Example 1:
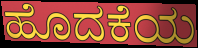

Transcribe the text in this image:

ಹೊದಕೆಯ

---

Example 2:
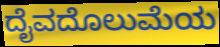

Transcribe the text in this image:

ದೈವದೊಲುಮೆಯ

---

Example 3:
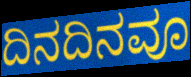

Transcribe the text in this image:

ದಿನದಿನವೂ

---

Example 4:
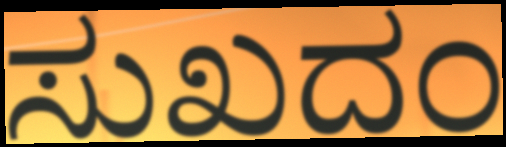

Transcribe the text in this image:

ಸುಖದಂ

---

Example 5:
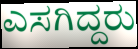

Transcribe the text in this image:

ಎಸಗಿದ್ದರು